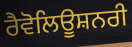
ਰੈਵੋਲਿਊਸ਼ਨਰੀ